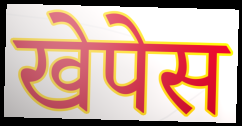
खेपेस